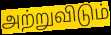
அற்றுவிடும்